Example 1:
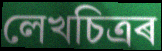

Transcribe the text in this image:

লেখচিত্ৰৰ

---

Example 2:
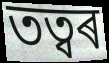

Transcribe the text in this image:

তত্বৰ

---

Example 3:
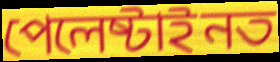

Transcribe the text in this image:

পেলেষ্টাইনত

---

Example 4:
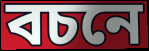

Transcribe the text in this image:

বচনে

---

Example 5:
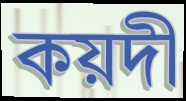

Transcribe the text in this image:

কয়দী